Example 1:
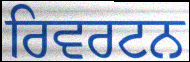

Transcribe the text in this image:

ਰਿਵਰਟਨ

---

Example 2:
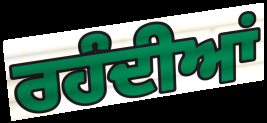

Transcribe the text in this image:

ਰਹੰਦੀਆਂ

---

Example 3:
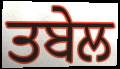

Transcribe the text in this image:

ਤਬੇਲ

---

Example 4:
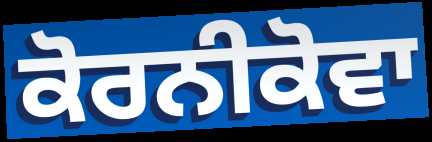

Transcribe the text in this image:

ਕੋਰਨੀਕੋਵਾ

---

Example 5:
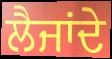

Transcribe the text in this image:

ਲੈਜਾਂਦੇ